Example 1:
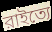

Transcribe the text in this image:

রাইত্যে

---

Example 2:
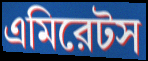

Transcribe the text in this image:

এমিরেটস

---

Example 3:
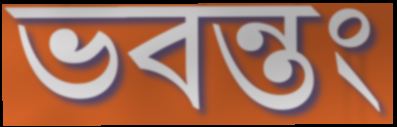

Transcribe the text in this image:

ভবন্তং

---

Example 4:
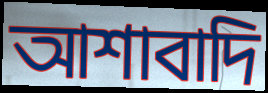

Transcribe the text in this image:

আশাবাদি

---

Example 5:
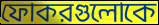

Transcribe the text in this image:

ফোকরগুলোকে